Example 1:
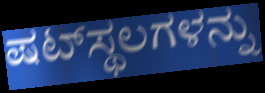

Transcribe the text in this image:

ಷಟ್‌ಸ್ಥಲಗಳನ್ನು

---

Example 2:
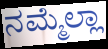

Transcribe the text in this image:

ನಮ್ಮೆಲ್ಲಾ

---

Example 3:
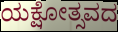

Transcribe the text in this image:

ಯಕ್ಷೋತ್ಸವದ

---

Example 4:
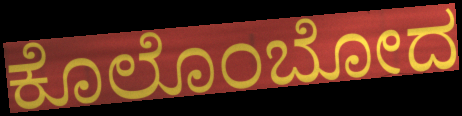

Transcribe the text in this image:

ಕೊಲೊಂಬೋದ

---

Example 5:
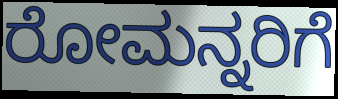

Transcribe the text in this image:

ರೋಮನ್ನರಿಗೆ